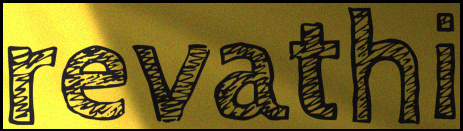
revathi